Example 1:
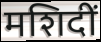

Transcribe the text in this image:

मशिदीं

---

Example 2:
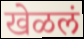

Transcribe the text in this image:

खेळलं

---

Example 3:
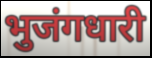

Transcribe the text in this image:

भुजंगधारी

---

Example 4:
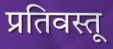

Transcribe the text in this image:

प्रतिवस्तू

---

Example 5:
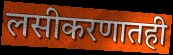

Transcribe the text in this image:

लसीकरणातही